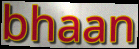
bhaan